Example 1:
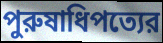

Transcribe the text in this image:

পুরুষাধিপত্যের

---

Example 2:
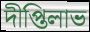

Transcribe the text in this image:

দীপ্তিলাভ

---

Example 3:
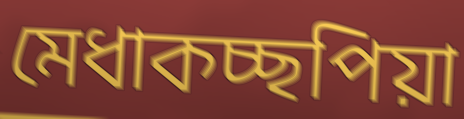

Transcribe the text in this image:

মেধাকচ্ছপিয়া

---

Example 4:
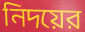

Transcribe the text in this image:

নিদয়ের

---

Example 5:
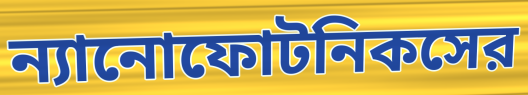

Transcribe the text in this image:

ন্যানোফোটনিকসের